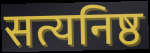
सत्यनिष्ठ